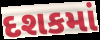
દશકમાં